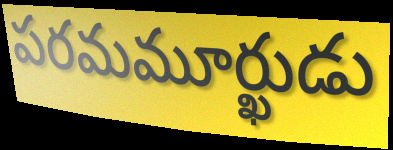
పరమమూర్ఖుడు